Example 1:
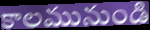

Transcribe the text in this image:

కాలమునుండి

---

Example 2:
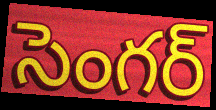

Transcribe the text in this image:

సెంగర్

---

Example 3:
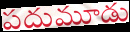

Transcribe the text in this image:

పదుమూడు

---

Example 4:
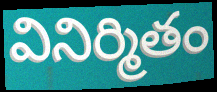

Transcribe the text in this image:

వినిర్మితం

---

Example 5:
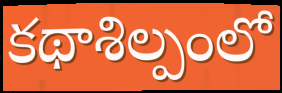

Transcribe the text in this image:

కథాశిల్పంలో